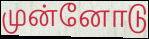
முன்னோடு